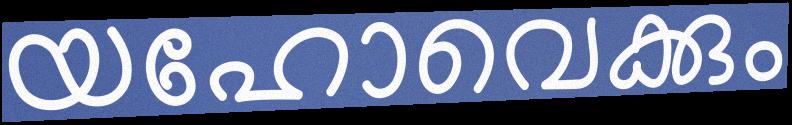
യഹോവെക്കും